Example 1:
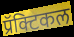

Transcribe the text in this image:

प्रॅक्टिकल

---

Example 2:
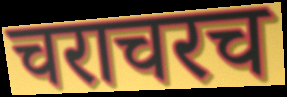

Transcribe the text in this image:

चराचरच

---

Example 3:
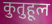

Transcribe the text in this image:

कुतुहूल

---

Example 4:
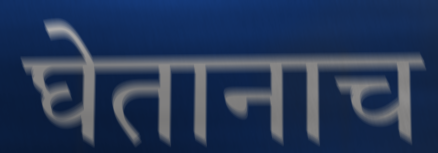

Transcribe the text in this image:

घेतानाच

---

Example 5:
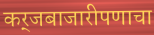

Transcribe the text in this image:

कर्जबाजारीपणाचा